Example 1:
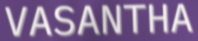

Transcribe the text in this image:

VASANTHA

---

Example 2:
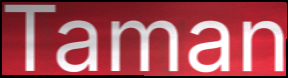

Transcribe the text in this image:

Taman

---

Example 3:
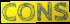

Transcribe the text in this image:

CONS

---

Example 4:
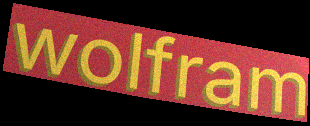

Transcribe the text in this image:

wolfram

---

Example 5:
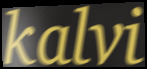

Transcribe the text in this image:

kalvi